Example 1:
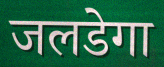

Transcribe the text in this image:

जलडेगा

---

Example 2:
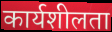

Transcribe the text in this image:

कार्यशीलता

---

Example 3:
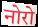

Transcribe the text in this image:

नोरो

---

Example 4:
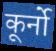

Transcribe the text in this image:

कूर्नो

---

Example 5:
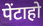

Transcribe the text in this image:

पेंटाहो